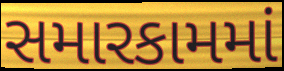
સમારકામમાં